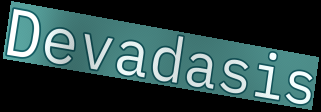
Devadasis